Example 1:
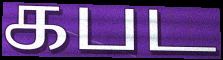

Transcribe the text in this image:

கபட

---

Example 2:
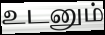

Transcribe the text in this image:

உடனும்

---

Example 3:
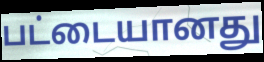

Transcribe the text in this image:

பட்டையானது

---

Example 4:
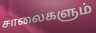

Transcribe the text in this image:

சாலைகளும்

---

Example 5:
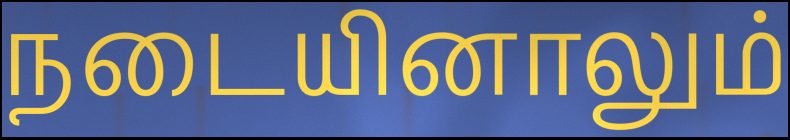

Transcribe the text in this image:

நடையினாலும்